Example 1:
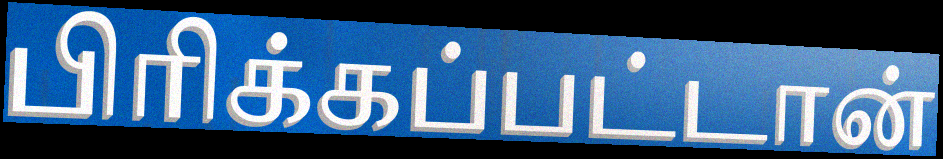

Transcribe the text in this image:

பிரிக்கப்பட்டான்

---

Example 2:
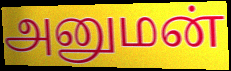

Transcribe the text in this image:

அனுமன்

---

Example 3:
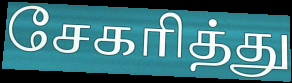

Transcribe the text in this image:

சேகரித்து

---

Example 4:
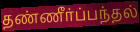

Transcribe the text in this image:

தண்ணீர்ப்பந்தல்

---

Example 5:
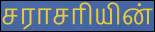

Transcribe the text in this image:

சராசரியின்